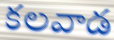
కలవాడ